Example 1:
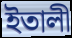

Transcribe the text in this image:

ইতালী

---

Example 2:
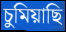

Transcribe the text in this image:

চুমিয়াছি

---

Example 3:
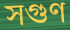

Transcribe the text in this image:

সগুণ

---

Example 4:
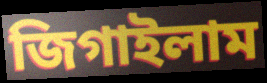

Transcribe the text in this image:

জিগাইলাম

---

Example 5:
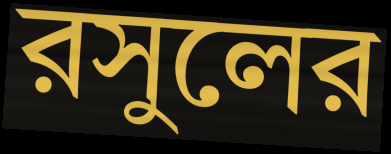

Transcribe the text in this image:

রসুলের